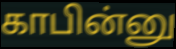
காபின்னு